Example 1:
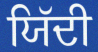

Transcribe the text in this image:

ਯਿੱਦੀ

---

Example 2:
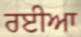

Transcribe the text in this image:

ਰਈਆ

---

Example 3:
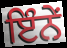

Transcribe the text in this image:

ਇੰਨੇਂ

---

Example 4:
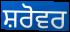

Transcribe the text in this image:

ਸ਼ਰੋਵਰ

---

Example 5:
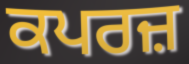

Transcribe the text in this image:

ਕਪਰਜ਼